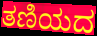
ತಣಿಯದ